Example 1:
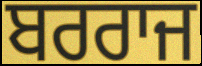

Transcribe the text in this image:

ਬਰਰਾਜ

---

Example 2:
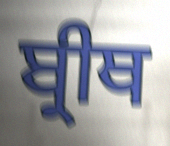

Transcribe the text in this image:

ਬ੍ਰੀਥ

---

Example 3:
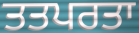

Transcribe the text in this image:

ਤਤਪਰਤਾ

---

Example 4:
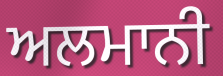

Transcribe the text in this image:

ਅਲਮਾਨੀ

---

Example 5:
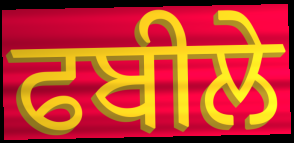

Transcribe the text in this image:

ਫਬੀਲੇ